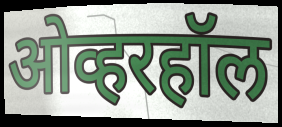
ओव्हरहॉल